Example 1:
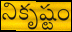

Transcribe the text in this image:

నికృష్టం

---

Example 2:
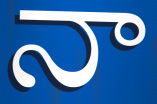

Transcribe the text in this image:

నా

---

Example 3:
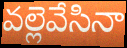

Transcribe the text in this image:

వల్లెవేసినా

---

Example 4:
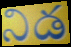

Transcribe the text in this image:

నిడ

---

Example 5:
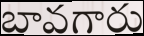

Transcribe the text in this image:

బావగారు